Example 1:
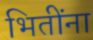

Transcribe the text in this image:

भितींना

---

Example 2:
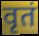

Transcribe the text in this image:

वृतं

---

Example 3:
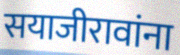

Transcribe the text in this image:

सयाजीरावांना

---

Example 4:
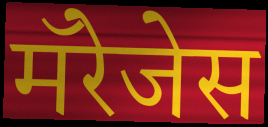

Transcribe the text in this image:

मॅरेजेस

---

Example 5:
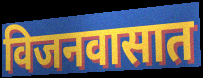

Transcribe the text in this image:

विजनवासात